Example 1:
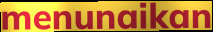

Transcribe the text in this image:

menunaikan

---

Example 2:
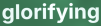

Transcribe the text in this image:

glorifying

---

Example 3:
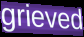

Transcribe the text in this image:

grieved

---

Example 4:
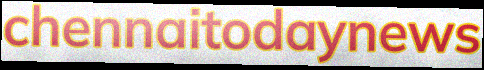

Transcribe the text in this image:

chennaitodaynews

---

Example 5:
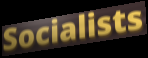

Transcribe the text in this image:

Socialists